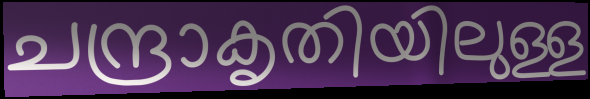
ചന്ദ്രാകൃതിയിലുള്ള